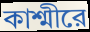
কাশ্মীরে